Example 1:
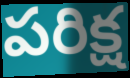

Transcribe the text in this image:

పరిక్ష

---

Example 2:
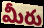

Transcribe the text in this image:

మీరు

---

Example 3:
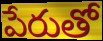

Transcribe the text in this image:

పేరుతో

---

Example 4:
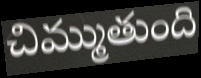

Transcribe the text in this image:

చిమ్ముతుంది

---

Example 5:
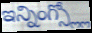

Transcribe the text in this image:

ఇన్నింగ్స్ల్లో